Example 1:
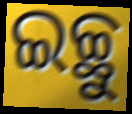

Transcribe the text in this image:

ଇଚ୍ଛୁ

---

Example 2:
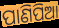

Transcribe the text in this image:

ପାଣିପିଆ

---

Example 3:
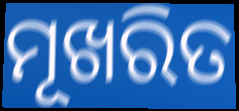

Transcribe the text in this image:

ମୂଖରିତ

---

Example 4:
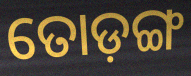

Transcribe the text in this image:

ତୋଡ଼ଙ୍ଗ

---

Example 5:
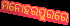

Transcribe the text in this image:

ମନୋହରପୁରରେ